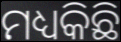
ମଧ୍ୟକିଛି